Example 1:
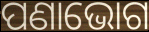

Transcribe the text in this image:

ପଣାଭୋଗ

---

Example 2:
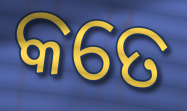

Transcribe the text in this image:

କତେ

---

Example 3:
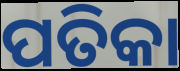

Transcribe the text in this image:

ପତିକା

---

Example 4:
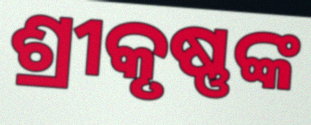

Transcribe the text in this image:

ଶ୍ରୀକୃଷ୍ଣଙ୍କ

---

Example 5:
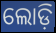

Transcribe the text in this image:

ଲୋଡ଼ି